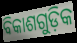
ବିକାଶଗୁଡ଼ିକ